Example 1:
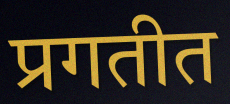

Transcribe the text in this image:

प्रगतीत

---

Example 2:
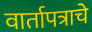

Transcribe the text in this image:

वार्तापत्राचे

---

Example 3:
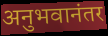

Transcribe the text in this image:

अनुभवानंतर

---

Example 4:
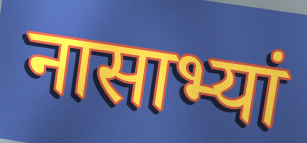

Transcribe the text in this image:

नासाभ्यां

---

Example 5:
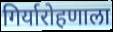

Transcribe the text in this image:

गिर्यारोहणाला